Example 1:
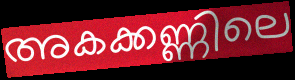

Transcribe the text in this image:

അകക്കണ്ണിലെ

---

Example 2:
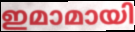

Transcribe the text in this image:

ഇമാമായി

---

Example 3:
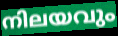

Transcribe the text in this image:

നിലയവും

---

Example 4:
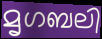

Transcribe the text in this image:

മൃഗബലി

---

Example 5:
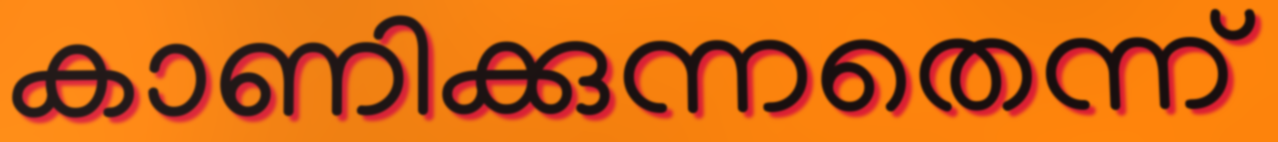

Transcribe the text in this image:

കാണിക്കുന്നതെന്ന്